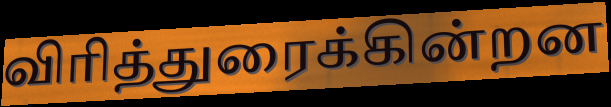
விரித்துரைக்கின்றன